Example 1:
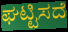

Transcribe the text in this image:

ಘಟ್ಟಿಸದೆ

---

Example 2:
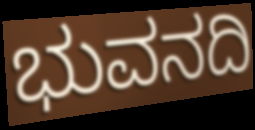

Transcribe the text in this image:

ಭುವನದಿ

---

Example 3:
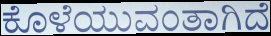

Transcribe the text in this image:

ಕೊಳೆಯುವಂತಾಗಿದೆ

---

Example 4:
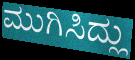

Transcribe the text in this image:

ಮುಗಿಸಿದ್ಲು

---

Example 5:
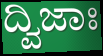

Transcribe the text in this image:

ದ್ವಿಜಾಃ